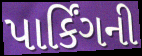
પાર્કિંગની